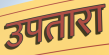
उपतारा